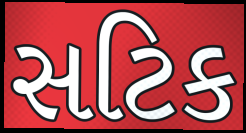
સટિક